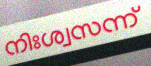
നിഃശ്വസന്ന്